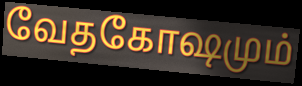
வேதகோஷமும்